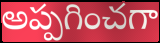
అప్పగించగా